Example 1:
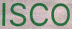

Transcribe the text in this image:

ISCO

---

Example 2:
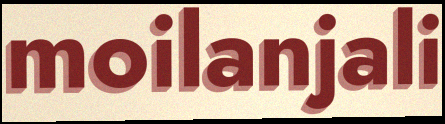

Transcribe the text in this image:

moilanjali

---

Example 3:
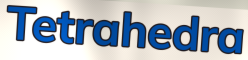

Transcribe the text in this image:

Tetrahedra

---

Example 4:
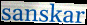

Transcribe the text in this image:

sanskar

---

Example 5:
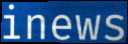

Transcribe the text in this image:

inews